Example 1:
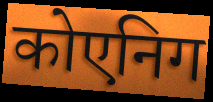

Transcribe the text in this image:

कोएनिग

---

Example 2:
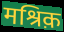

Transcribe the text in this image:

मश्रिक़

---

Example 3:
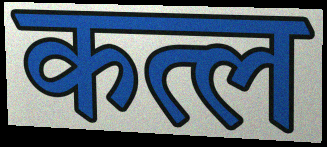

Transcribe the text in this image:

कत्‍ल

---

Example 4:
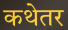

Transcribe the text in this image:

कथेतर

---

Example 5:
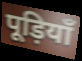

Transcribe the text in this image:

पूड़ियाँ